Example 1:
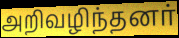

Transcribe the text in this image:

அறிவழிந்தனர்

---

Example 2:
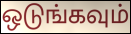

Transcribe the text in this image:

ஒடுங்கவும்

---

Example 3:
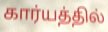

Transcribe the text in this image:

கார்யத்தில்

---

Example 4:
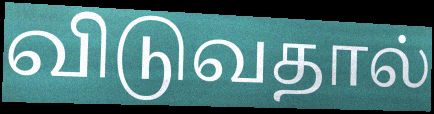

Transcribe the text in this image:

விடுவதால்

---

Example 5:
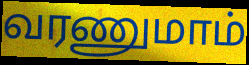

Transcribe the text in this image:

வரணுமாம்